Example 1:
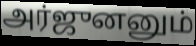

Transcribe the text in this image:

அர்ஜுனனும்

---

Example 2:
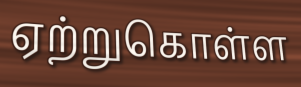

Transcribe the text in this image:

ஏற்றுகொள்ள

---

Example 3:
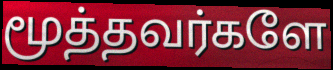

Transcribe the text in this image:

மூத்தவர்களே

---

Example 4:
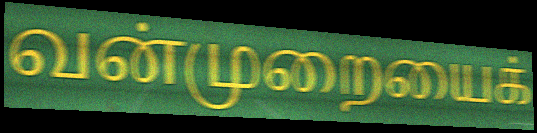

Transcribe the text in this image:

வன்முறையைக்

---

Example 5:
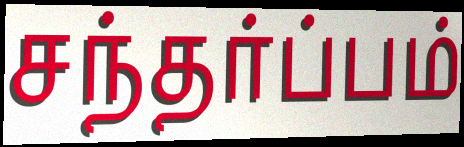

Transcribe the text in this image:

சந்தர்ப்பம்